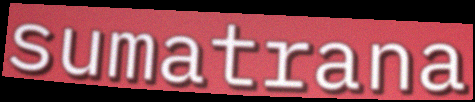
sumatrana